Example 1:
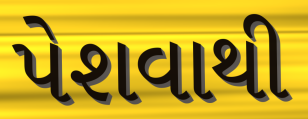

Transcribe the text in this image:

પેશવાથી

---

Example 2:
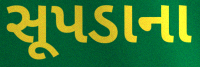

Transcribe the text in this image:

સૂપડાના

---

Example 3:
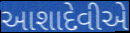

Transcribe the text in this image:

આશાદેવીએ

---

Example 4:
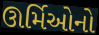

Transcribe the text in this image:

ઊર્મિઓનો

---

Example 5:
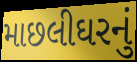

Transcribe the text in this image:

માછલીઘરનું